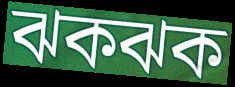
ঝকঝক